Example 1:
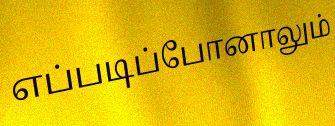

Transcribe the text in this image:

எப்படிப்போனாலும்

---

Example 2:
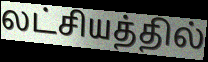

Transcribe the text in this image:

லட்சியத்தில்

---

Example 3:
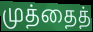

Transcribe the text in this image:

முத்தைத்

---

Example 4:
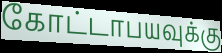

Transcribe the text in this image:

கோட்டாபயவுக்கு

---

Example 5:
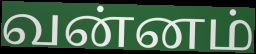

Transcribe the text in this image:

வன்னம்